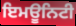
ਇਮਊਨਿਟੀ